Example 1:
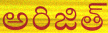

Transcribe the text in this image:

అరిజిత్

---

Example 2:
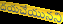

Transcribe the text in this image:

దయచేయునని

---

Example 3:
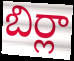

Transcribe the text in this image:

బిర్లా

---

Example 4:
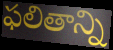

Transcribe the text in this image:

ఫలితాన్ని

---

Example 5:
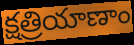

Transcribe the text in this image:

క్షత్రియాణాం